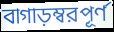
বাগাড়ম্বরপূর্ণ